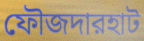
ফৌজদারহাট